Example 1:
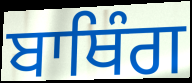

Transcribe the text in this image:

ਬਾਥਿੰਗ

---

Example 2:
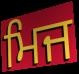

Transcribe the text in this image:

ਮਿਜ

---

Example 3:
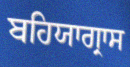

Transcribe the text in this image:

ਬਹਿਯਾਗ੍ਰਾਸ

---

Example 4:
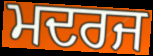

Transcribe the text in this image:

ਮਦਰਜ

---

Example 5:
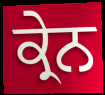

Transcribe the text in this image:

ਕ੍ਰੇਨ